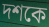
দশকে